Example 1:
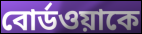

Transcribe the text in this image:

বোর্ডওয়াকে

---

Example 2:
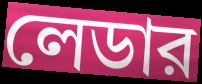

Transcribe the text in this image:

লেডার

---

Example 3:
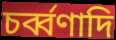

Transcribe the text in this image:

চর্ব্বণাদি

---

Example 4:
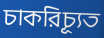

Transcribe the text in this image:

চাকরিচ্যূত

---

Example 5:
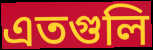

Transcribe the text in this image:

এতগুলি